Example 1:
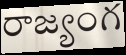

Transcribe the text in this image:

రాజ్యంగ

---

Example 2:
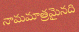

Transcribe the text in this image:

నామమాత్రమైనది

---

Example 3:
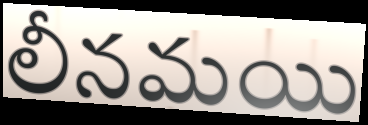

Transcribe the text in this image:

లీనమయి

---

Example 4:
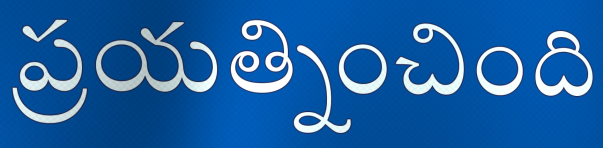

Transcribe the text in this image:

ప్రయత్నించింది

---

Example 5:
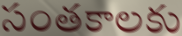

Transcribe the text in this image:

సంతకాలకు